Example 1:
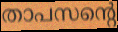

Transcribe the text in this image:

താപസന്റെ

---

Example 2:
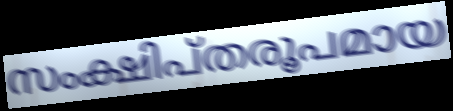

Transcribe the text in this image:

സംക്ഷിപ്തരൂപമായ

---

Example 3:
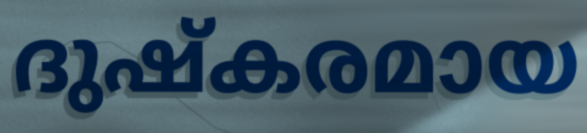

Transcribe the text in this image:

ദുഷ്കരമായ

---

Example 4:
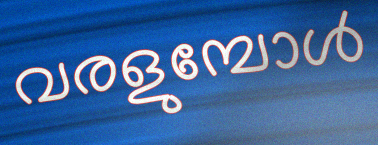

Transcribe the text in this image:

വരളുമ്പോൾ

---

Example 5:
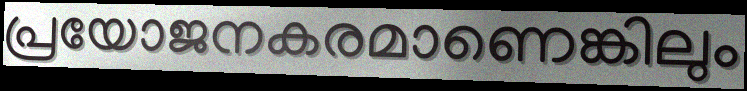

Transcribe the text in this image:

പ്രയോജനകരമാണെങ്കിലും